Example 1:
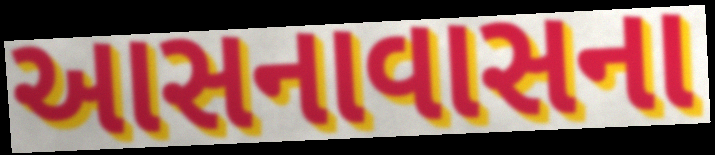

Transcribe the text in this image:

આસનાવાસના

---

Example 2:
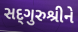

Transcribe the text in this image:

સદ્‌ગુરુશ્રીને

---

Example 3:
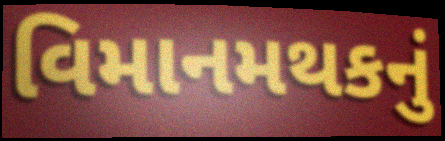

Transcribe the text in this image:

વિમાનમથકનું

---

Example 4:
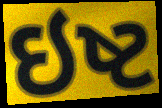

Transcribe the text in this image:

ઇષ્ટ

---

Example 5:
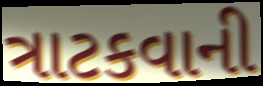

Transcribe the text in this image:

ત્રાટકવાની